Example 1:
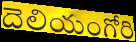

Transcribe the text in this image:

దెలియంగోరి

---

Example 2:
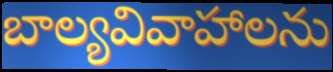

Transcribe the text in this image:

బాల్యవివాహాలను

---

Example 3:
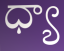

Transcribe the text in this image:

ధ్యా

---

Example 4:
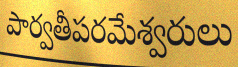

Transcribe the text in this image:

పార్వతీపరమేశ్వరులు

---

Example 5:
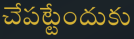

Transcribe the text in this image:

చేపట్టేందుకు